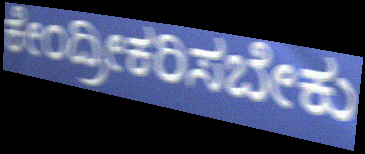
ಕೇಂದ್ರೀಕರಿಸಬೇಕು